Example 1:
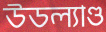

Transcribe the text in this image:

উডল্যাণ্ড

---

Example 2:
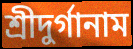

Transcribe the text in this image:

শ্রীদুর্গানাম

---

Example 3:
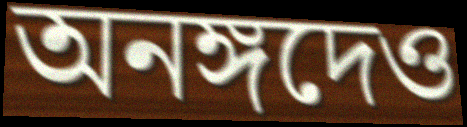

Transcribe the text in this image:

অনঙ্গদেও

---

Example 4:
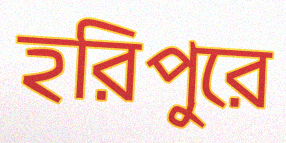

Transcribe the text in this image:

হরিপুরে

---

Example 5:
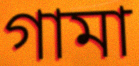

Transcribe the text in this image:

গামা